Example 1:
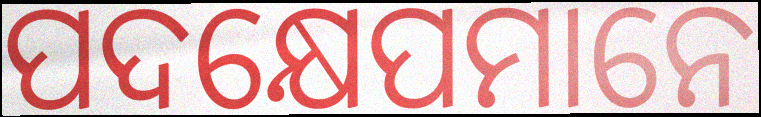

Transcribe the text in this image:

ପଦକ୍ଷେପମାନେ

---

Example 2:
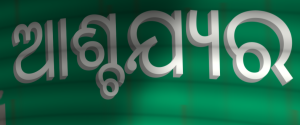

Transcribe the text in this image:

ଆଶ୍ଚଯ୍ୟର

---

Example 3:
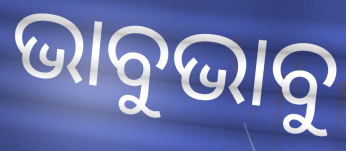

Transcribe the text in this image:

ଭାବୁଭାବୁ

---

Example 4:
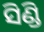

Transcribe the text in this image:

ସିଣ୍ଡି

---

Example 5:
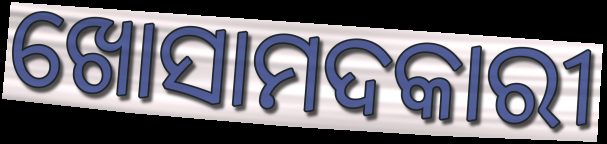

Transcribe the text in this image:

ଖୋସାମଦକାରୀ